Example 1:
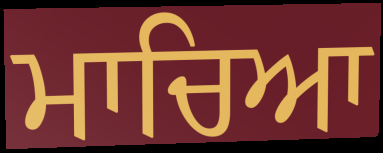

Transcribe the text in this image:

ਮਾਚਿਆ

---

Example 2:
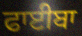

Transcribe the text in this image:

ਫਾਈਬਾ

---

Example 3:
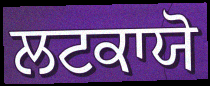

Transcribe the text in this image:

ਲਟਕਾਯੋ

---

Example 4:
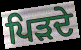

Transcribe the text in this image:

ਪਿੜਦੇ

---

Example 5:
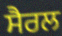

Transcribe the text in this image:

ਸੈਰਲ